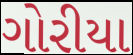
ગોરીયા